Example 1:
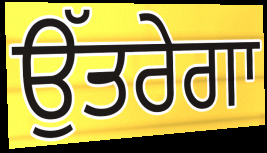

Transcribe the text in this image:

ਉੱਤਰੇਗਾ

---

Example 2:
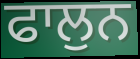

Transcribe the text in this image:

ਫਾਲੁਨ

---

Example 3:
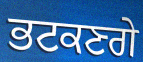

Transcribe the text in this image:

ਭਟਕਣਗੇ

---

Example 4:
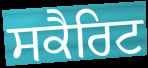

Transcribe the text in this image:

ਸਕੈਰਿਟ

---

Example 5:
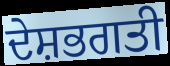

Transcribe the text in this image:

ਦੇਸ਼ਭਗਤੀ